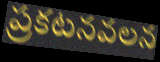
ప్రకటనవలన